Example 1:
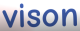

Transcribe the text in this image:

vison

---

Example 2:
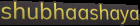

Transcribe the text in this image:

shubhaashaya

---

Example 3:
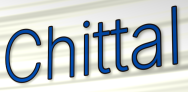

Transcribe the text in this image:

Chittal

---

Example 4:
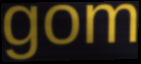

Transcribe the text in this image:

gom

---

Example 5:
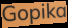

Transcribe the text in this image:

Gopika